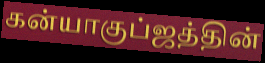
கன்யாகுப்ஜத்தின்